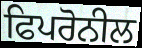
ਫਿਪਰੋਨੀਲ